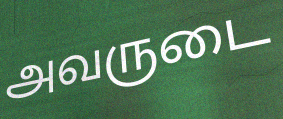
அவருடை